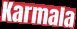
Karmala